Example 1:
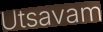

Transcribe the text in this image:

Utsavam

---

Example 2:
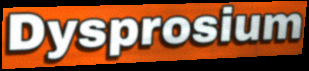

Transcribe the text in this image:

Dysprosium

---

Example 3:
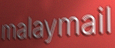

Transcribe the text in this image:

malaymail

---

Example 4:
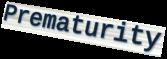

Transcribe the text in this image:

Prematurity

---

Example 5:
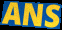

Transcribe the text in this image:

ANS